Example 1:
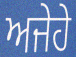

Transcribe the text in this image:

ਅਜੇਹੇ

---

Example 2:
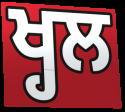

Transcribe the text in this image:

ਖ੍ਹਲ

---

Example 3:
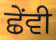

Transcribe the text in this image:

ਛੇੰਵੀ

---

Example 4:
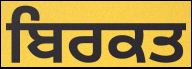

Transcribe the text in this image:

ਬਿਰਕਤ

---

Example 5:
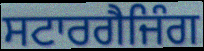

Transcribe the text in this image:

ਸਟਾਰਗੈਜਿੰਗ